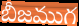
బీజముగ